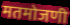
मतमोजणी